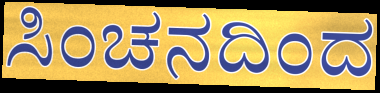
ಸಿಂಚನದಿಂದ